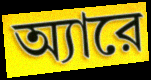
অ্যারে